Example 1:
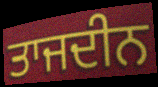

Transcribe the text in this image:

ਤਾਜਦੀਨ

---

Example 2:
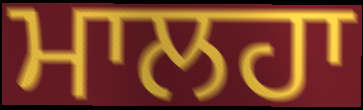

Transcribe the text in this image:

ਮਾਲਹਾ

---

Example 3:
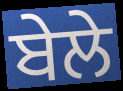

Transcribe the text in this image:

ਬੇਲੇ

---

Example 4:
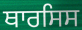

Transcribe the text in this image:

ਥਾਰਸਿਸ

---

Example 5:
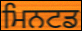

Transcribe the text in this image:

ਮਿਨਟਡ